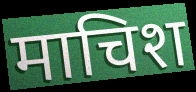
माचिश